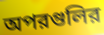
অপরগুলির